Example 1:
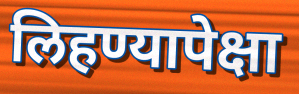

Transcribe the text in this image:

लिहण्यापेक्षा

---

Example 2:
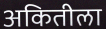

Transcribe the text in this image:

अकितीला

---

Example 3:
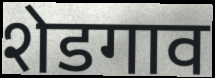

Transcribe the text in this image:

शेडगाव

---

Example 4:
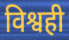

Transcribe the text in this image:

विश्वही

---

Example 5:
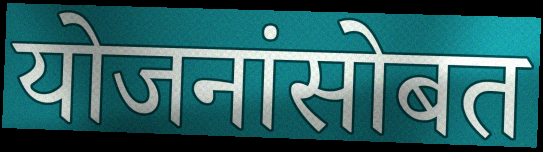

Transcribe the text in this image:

योजनांसोबत